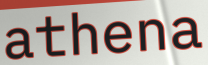
athena